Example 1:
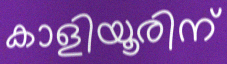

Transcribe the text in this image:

കാളിയൂരിന്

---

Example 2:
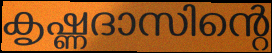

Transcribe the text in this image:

കൃഷ്ണദാസിന്റെ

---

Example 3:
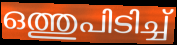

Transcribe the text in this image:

ഒത്തുപിടിച്ച്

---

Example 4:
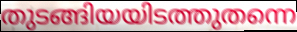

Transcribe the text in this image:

തുടങ്ങിയയിടത്തുതന്നെ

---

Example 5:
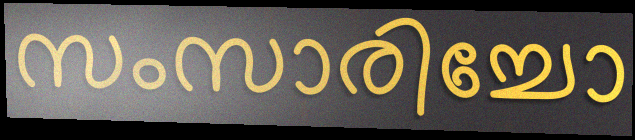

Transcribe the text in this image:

സംസാരിച്ചോ